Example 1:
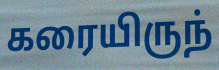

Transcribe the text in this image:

கரையிருந்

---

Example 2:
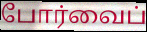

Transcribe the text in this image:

போர்வைப்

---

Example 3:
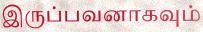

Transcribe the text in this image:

இருப்பவனாகவும்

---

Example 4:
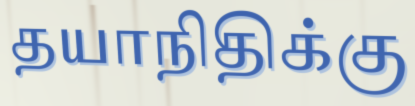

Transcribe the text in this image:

தயாநிதிக்கு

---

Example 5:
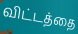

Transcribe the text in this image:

விட்டத்தை